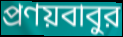
প্রণয়বাবুর